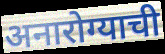
अनारोग्याची